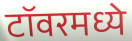
टॉवरमध्ये